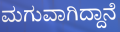
ಮಗುವಾಗಿದ್ದಾನೆ